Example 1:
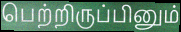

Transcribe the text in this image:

பெற்றிருப்பினும்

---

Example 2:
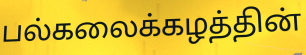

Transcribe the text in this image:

பல்கலைக்கழத்தின்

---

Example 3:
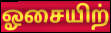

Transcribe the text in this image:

ஓசையிற்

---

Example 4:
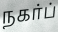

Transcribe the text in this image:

நகர்ப்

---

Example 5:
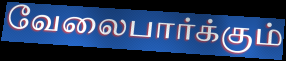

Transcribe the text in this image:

வேலைபார்க்கும்